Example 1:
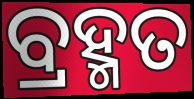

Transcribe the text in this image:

ବ୍ରହ୍ମତ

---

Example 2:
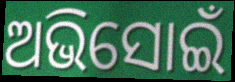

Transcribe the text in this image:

ଅଭିସୋଇଁ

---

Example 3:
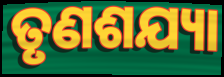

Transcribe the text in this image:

ତୃଣଶଯ୍ୟା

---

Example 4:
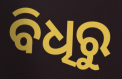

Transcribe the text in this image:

ବିଧିରୁ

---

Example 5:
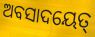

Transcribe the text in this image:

ଅବସାଦୟେତ୍